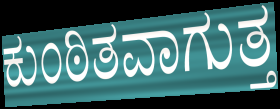
ಕುಂಠಿತವಾಗುತ್ತ